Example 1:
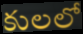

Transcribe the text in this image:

కులలో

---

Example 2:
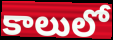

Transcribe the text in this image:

కాలులో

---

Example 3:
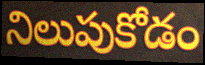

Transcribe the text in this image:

నిలుపుకోడం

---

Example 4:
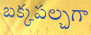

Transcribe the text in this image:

బక్కపల్చగా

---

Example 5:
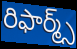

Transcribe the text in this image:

రిఫార్మ్స్